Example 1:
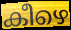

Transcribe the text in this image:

കീഴെ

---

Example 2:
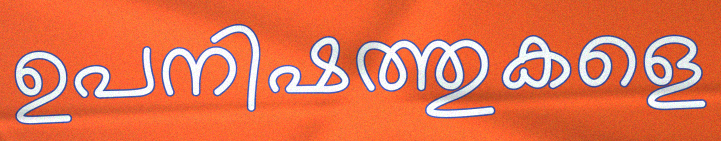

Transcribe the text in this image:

ഉപനിഷത്തുകളെ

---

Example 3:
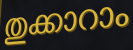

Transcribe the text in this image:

തുക്കാറാം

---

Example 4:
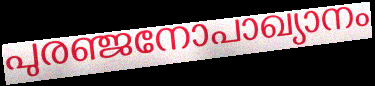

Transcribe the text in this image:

പുരഞ്ജനോപാഖ്യാനം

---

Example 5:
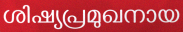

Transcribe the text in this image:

ശിഷ്യപ്രമുഖനായ